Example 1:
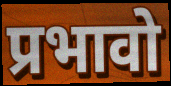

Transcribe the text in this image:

प्रभावो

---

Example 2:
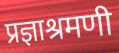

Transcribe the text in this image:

प्रज्ञाश्रमणी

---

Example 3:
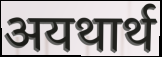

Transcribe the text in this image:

अयथार्थ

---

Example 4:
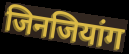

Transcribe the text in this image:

जिनजियांग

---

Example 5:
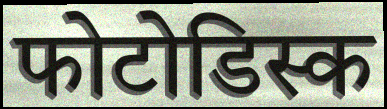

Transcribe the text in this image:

फोटोडिस्क